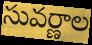
సువర్ణాల